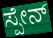
ಸ್ಪೇನ್